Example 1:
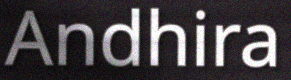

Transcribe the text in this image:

Andhira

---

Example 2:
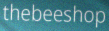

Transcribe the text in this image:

thebeeshop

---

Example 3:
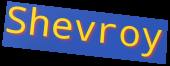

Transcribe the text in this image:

Shevroy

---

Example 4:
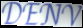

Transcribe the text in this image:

DENV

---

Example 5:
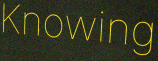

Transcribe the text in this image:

Knowing